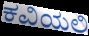
ಕವಿಯಲಿ